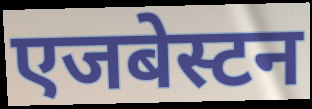
एजबेस्टन